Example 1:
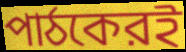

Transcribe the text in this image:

পাঠকেরই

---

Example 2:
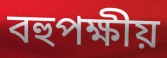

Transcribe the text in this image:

বহুপক্ষীয়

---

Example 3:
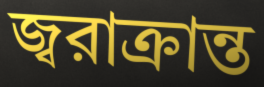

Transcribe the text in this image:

জ্বরাক্রান্ত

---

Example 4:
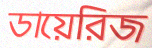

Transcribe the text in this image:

ডায়েরিজ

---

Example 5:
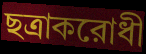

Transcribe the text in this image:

ছত্রাকরোধী